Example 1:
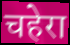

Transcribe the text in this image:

चहेरा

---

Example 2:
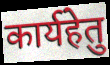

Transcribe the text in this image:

कार्यहेतु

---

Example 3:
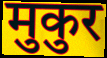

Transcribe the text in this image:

मुकुर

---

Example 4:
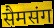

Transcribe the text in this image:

सैमसंग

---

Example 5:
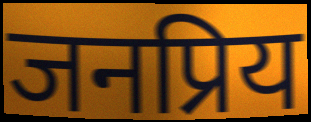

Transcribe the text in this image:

जनप्रिय